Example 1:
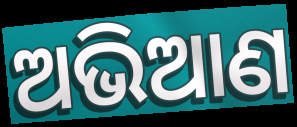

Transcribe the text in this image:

ଅଭିଆଣ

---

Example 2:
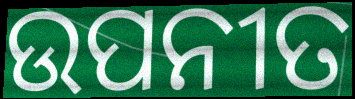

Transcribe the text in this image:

ଉପନୀତ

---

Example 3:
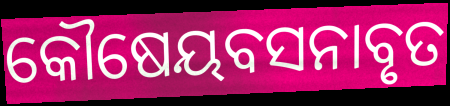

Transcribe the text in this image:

କୌଷେୟବସନାବୃତ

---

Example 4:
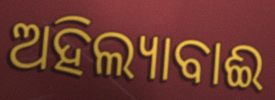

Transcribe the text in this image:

ଅହିଲ୍ୟାବାଈ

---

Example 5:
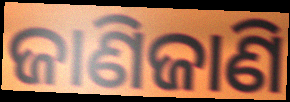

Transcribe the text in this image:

ଜାଣିଜାଣି